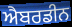
ਐਬਰਡੀਨ